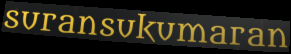
suransukumaran